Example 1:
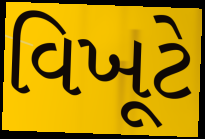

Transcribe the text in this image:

વિખૂટે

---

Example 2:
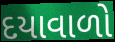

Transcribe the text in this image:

દયાવાળો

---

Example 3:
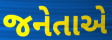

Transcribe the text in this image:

જનેતાએ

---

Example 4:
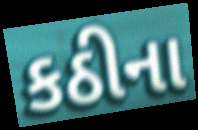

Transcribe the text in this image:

કઠીના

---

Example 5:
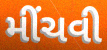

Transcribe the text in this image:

મીંચવી